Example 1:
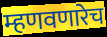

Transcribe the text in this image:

म्हणवणारेच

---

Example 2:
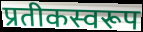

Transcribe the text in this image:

प्रतीकस्वरूप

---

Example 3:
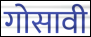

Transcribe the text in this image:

गोसावी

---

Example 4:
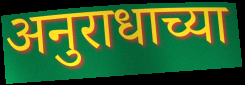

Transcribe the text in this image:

अनुराधाच्या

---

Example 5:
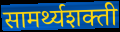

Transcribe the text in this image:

सामर्थ्यशक्ती